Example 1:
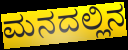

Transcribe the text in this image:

ಮನದಲ್ಲಿನ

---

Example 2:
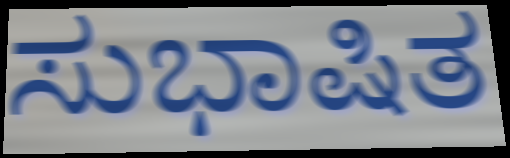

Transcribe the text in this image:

ಸುಭಾಷಿತ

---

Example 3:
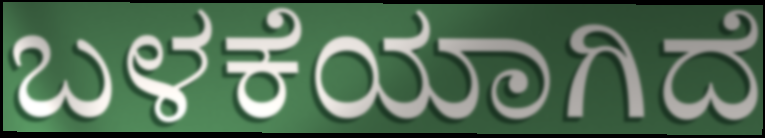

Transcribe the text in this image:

ಬಳಕೆಯಾಗಿದೆ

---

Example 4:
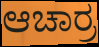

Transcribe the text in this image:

ಆಚಾರ್ರ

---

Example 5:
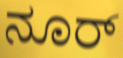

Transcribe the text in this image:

ನೂರ್